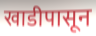
खाडीपासून